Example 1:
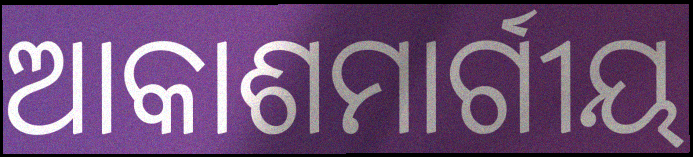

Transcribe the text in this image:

ଆକାଶମାର୍ଗୀୟ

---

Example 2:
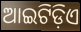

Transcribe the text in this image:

ଆଇଟିଡ଼ିଏ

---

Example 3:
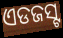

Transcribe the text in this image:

ଏଡଜସ୍ଟ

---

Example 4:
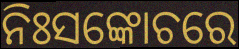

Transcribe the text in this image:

ନିଃସଙ୍କୋଚରେ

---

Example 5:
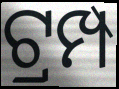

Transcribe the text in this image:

ଟ୍ରମ୍ପ